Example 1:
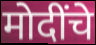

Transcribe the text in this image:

मोदींचे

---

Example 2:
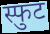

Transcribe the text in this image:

स्फुट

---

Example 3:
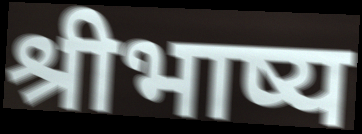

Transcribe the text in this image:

श्रीभाष्य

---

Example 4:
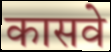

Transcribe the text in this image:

कासवे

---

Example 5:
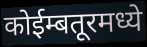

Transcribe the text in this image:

कोईम्बतूरमध्ये